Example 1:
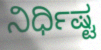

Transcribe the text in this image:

ನಿರ್ಧಿಷ್ಟ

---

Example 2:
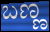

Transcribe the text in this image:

ಬಣ್ಣ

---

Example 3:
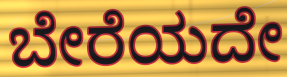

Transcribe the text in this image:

ಬೇರೆಯದೇ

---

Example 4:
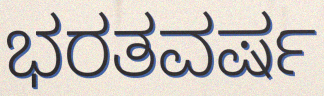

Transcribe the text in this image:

ಭರತವರ್ಷ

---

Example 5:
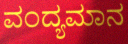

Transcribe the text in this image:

ವಂದ್ಯಮಾನ